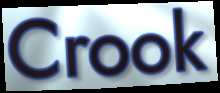
Crook